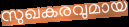
സുഖകരവുമായ